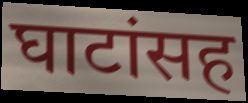
घाटांसह